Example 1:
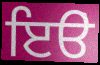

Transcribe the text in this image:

ਇੳਂ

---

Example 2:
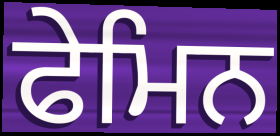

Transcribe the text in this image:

ਫੇਮਿਨ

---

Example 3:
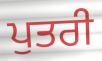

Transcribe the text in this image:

ਪੁਤਰੀ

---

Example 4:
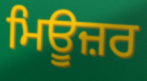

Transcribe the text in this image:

ਮਿਊਜ਼ਰ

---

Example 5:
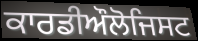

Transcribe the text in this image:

ਕਾਰਡੀਔਲੋਜਿਸਟ